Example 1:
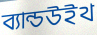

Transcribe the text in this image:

ব্যান্ডউইথ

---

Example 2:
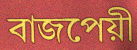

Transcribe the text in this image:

বাজপেয়ী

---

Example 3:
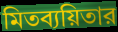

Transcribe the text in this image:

মিতব্যয়িতার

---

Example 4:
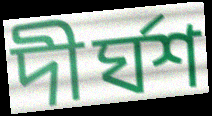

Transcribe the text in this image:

দীর্ঘশ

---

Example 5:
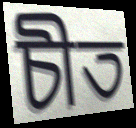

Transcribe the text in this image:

চীত